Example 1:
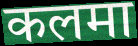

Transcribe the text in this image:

कलमा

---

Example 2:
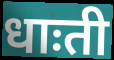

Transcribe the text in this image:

धाःती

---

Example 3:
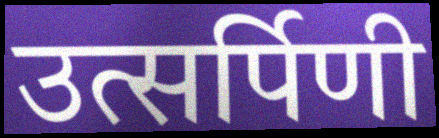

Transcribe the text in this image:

उत्सर्पिणी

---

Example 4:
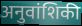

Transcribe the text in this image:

अनुवांशिकी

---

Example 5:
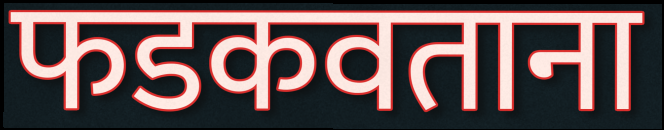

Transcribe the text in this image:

फडकवताना